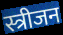
स्त्रीजन